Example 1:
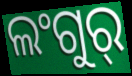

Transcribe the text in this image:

ଲଂଗୁର୍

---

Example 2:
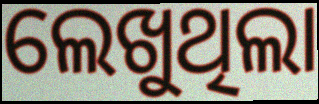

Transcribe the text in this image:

ଲେଖୁଥିଲା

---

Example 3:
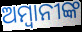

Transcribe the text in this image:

ଅମ୍ବାନୀଙ୍କ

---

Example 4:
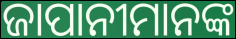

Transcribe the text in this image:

ଜାପାନୀମାନଙ୍କ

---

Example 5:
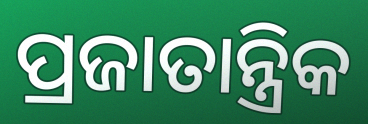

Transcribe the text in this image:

ପ୍ରଜାତାନ୍ତ୍ରିକ